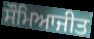
ਸੌਮਿਆਜੀਤ